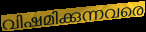
വിഷമിക്കുന്നവരെ